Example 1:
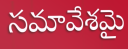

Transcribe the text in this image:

సమావేశమై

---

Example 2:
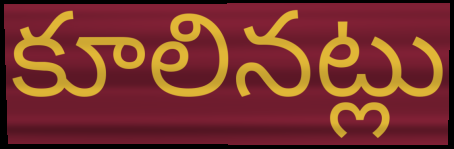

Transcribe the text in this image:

కూలినట్లు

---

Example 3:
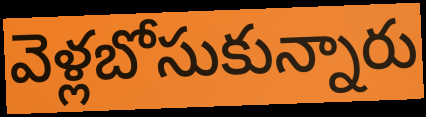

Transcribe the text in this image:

వెళ్లబోసుకున్నారు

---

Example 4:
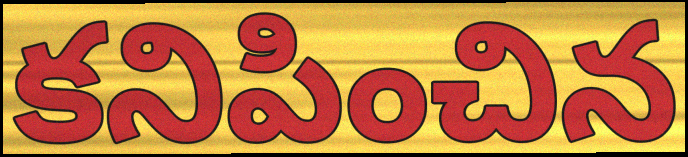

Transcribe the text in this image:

కనిపించిన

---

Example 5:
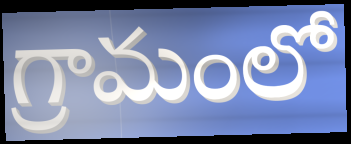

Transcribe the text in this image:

గ్రామంలో